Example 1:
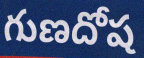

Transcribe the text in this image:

గుణదోష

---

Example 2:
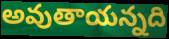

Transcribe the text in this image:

అవుతాయన్నది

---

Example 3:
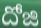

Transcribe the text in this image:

దోజి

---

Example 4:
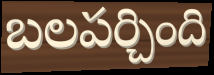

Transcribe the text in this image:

బలపర్చింది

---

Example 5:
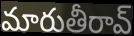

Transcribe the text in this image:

మారుతీరావ్